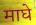
माघे